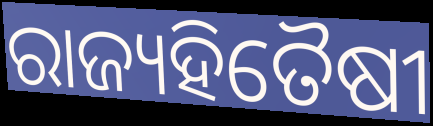
ରାଜ୍ୟହିତୈଷୀ